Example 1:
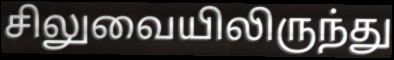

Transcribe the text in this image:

சிலுவையிலிருந்து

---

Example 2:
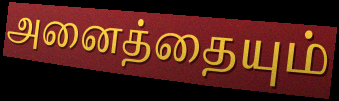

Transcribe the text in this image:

அனைத்தையும்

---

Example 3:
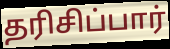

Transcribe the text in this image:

தரிசிப்பார்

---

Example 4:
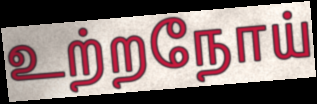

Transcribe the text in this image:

உற்றநோய்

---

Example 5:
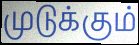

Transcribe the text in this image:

முடுக்கும்